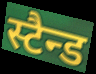
स्टैन्ड